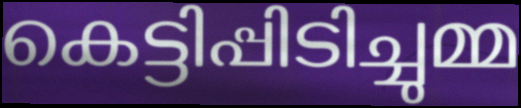
കെട്ടിപ്പിടിച്ചുമ്മ